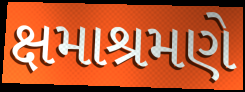
ક્ષમાશ્રમણે